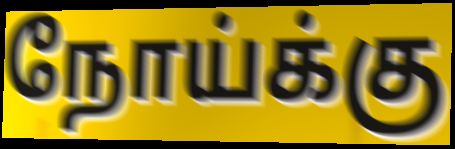
நோய்க்கு